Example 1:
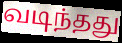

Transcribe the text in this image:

வடிந்தது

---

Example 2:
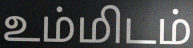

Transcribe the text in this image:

உம்மிடம்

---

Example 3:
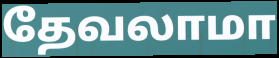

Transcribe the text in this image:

தேவலாமா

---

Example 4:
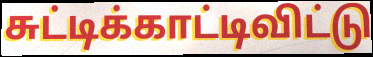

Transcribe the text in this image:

சுட்டிக்காட்டிவிட்டு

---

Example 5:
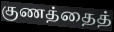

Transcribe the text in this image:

குணத்தைத்